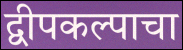
द्वीपकल्पाचा